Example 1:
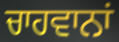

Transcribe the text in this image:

ਚਾਹਵਾਨਾਂ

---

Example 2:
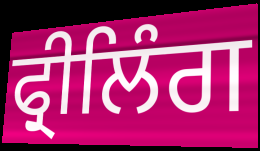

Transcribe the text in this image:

ਫ੍ਰੀਲਿੰਗ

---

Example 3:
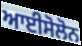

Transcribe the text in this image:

ਆਈਸੋਲੋਨ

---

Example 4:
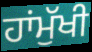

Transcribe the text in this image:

ਹਾਂਮੁੱਖੀ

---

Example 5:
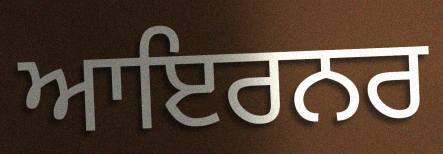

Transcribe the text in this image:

ਆਇਰਨਰ